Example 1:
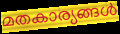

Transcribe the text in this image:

മതകാര്യങ്ങൾ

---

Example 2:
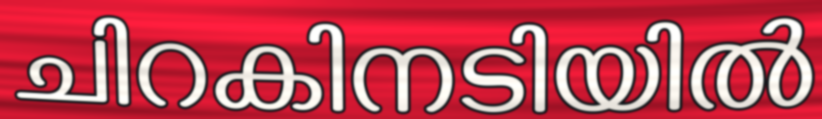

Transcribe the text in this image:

ചിറകിനടിയിൽ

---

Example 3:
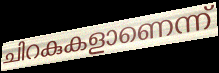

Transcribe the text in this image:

ചിറകുകളാണെന്ന്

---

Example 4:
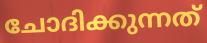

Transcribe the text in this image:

ചോദിക്കുന്നത്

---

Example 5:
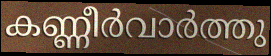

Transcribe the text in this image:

കണ്ണീർവാർത്തു